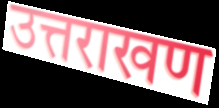
उत्तराखण